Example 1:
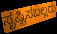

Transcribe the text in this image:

ಸೃಷ್ಟಿಸಬಲ್ಲರು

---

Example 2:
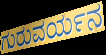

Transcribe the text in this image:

ಗುರುವರ್ಯನ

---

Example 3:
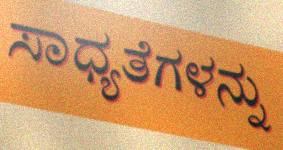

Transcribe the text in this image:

ಸಾಧ್ಯತೆಗಳನ್ನು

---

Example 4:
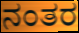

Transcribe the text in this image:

ನಂತರ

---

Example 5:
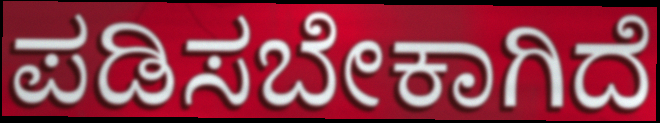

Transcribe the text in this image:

ಪಡಿಸಬೇಕಾಗಿದೆ